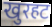
खुरहट